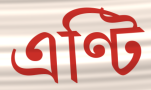
এণ্টি